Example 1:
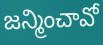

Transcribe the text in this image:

జన్మించావో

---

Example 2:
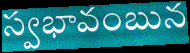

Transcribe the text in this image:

స్వభావంబున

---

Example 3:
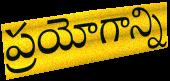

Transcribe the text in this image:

ప్రయోగాన్ని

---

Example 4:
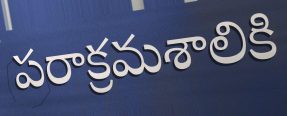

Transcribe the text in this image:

పరాక్రమశాలికి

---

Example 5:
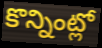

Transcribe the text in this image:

కొన్నింట్లో